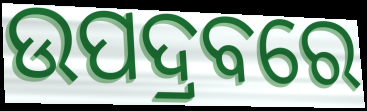
ଉପଦ୍ରବରେ